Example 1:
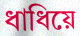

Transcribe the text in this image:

ধাধিয়ে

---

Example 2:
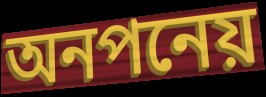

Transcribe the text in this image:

অনপনেয়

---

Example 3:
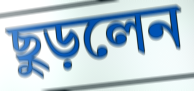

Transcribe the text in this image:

ছুড়লেন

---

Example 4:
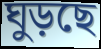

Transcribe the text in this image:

ঘুড়ছে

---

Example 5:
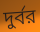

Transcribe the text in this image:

দুর্বর